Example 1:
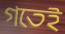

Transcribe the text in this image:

গতেই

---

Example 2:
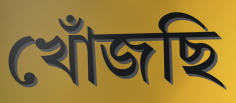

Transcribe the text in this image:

খোঁজছি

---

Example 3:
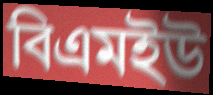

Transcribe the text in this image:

বিএমইউ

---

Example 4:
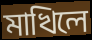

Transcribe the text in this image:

মাখিলে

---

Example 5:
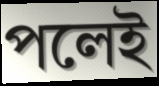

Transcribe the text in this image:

পলেই